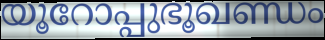
യൂറോപ്പുഭൂഖണ്ഡം